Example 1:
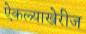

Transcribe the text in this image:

ऐकल्याखेरीज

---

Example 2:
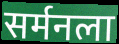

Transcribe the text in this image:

सर्मनला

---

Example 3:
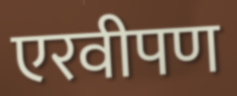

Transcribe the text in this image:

एरवीपण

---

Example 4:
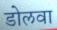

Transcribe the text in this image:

डोलवा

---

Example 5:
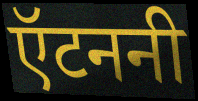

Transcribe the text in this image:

ऍटननी